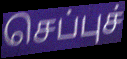
செப்புச்